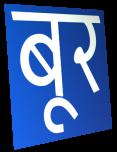
बूर